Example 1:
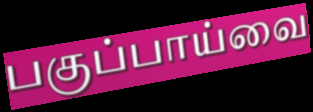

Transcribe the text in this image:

பகுப்பாய்வை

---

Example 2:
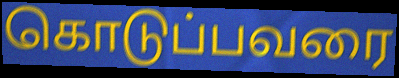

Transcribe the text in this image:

கொடுப்பவரை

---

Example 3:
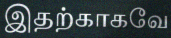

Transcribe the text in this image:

இதற்காகவே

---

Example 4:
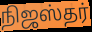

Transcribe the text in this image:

நிஜஸ்தர்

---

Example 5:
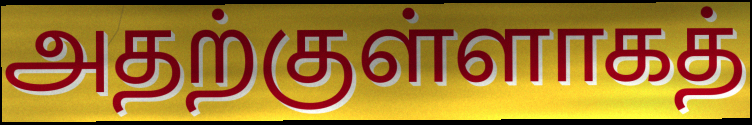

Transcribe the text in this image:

அதற்குள்ளாகத்